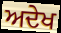
ਅਦੇਖ